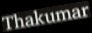
Thakumar